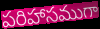
పరిహాసముగా